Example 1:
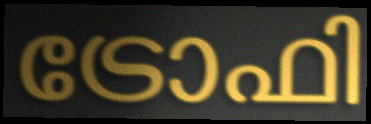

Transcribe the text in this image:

ട്രോഫി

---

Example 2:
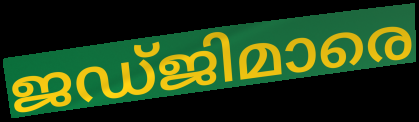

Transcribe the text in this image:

ജഡ്ജിമാരെ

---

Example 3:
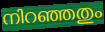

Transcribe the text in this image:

നിറഞ്ഞതും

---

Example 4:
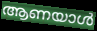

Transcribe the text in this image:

ആണയാൾ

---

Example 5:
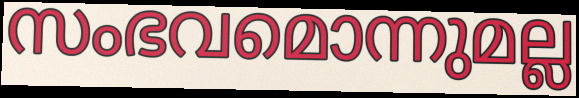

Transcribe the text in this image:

സംഭവമൊന്നുമല്ല